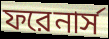
ফরেনার্স